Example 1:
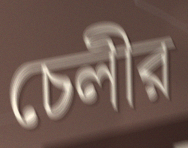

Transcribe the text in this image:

চেলীর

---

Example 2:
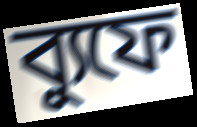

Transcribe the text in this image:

ব্যুফে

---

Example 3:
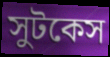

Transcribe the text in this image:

সুটকেস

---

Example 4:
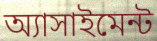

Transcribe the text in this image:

অ্যাসাইমেন্ট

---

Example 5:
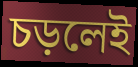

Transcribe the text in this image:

চড়লেই